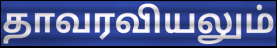
தாவரவியலும்